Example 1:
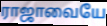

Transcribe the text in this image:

ராஜாவையே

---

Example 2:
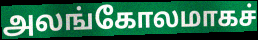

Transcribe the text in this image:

அலங்கோலமாகச்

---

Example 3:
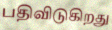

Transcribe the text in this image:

பதிவிடுகிறது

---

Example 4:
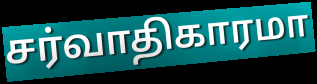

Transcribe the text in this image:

சர்வாதிகாரமா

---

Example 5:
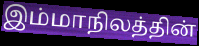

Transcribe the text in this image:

இம்மாநிலத்தின்